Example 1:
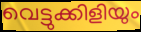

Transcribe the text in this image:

വെട്ടുക്കിളിയും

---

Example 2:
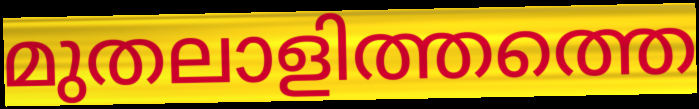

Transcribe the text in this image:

മുതലാളിത്തത്തെ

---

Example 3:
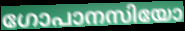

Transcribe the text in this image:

ഗോപാനസിയോ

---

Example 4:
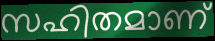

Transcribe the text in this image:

സഹിതമാണ്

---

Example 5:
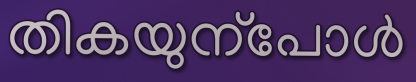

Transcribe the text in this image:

തികയുന്പോൾ